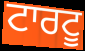
ਟਾਰਟੂ